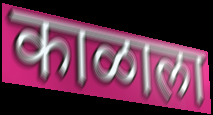
काळाला